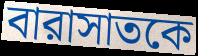
বারাসাতকে